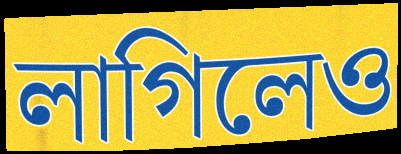
লাগিলেও